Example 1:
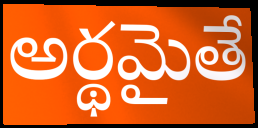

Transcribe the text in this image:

అర్థమైతే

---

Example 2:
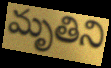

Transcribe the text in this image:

మృతిని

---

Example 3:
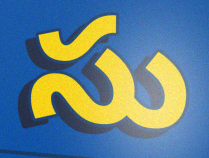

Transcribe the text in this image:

సు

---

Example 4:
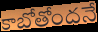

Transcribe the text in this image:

కాబోతోందనే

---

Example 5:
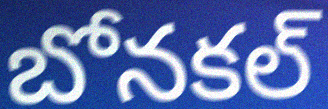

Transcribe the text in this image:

బోనకల్